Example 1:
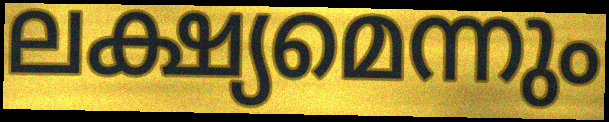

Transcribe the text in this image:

ലക്ഷ്യമെന്നും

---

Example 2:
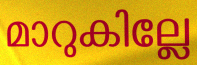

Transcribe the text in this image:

മാറുകില്ലേ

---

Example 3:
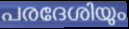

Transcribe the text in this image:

പരദേശിയും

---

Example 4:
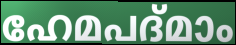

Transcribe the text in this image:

ഹേമപദ്മാം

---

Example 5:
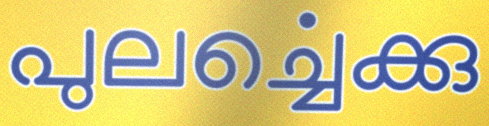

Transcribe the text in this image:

പുലൎച്ചെക്കു